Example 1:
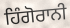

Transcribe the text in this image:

ਹਿੰਗੋਰਾਨੀ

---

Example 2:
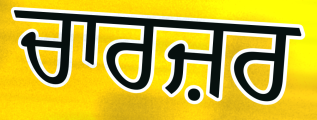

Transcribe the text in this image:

ਚਾਰਜ਼ਰ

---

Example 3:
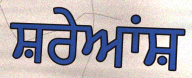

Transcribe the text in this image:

ਸ਼ਰੇਆਂਸ਼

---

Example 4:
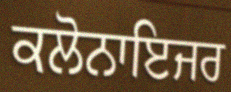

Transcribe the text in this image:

ਕਲੋਨਾਇਜਰ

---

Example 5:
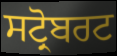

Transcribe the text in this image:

ਸਟ੍ਰੋਬਰਟ